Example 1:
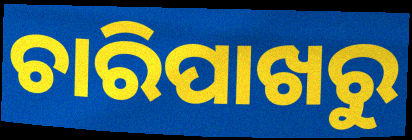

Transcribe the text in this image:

ଚାରିପାଖରୁ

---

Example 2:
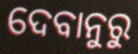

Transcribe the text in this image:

ଦେବାନୁରୁ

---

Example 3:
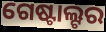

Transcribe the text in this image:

ଗେଷ୍ଟାଲ୍ଟର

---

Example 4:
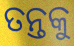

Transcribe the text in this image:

ତନ୍ତକୁ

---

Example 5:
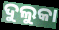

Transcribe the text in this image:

ଦୁଲୁକା